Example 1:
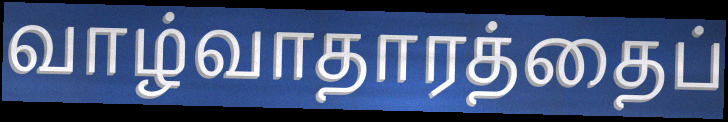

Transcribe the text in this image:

வாழ்வாதாரத்தைப்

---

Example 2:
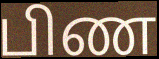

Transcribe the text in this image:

பிண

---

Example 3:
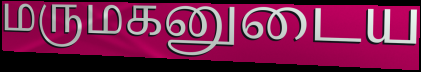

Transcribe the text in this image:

மருமகனுடைய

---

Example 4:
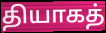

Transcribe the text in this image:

தியாகத்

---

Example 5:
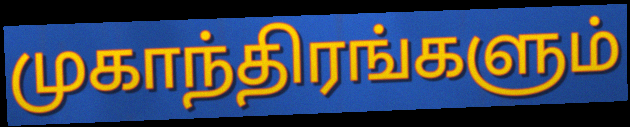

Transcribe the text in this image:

முகாந்திரங்களும்